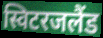
स्विटरजलैंड